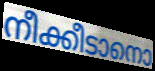
നീക്കീടാനൊ